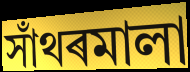
সাঁথৰমালা